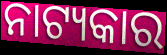
ନାଟ୍ୟକାର